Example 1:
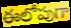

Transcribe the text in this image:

ఈలోపుగా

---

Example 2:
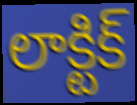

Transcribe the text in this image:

లాక్టిక్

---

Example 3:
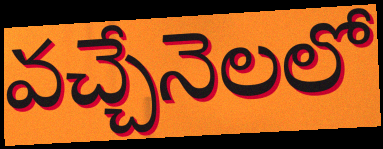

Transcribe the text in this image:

వచ్చేనెలలో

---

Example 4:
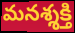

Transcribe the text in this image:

మనశ్శక్తి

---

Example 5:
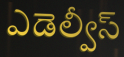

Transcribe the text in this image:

ఎడెల్వీస్